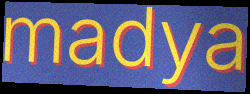
madya